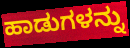
ಹಾಡುಗಳನ್ನು